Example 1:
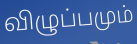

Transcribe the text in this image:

விழுப்பமும்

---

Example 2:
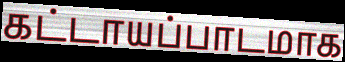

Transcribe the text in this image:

கட்டாயப்பாடமாக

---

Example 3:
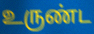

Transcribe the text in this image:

உருண்ட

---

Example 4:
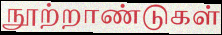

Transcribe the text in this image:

நூற்றாண்டுகள்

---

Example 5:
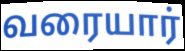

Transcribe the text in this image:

வரையார்